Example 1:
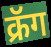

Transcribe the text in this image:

क्रॅग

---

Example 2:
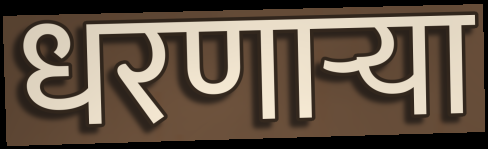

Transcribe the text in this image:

धरणाऱ्या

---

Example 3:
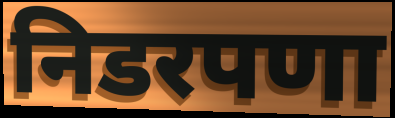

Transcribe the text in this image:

निडरपणा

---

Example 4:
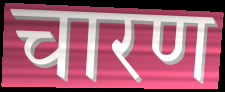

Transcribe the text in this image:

चारण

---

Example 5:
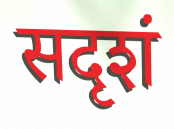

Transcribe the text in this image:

सदृशं